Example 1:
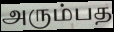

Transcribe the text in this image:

அரும்பத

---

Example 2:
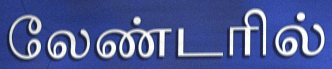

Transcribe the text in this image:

லேண்டரில்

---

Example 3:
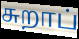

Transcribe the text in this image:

சுறாப்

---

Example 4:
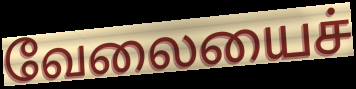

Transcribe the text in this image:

வேலையைச்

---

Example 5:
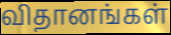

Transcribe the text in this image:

விதானங்கள்